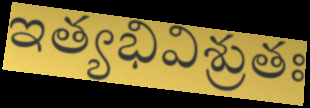
ఇత్యభివిశ్రుతః